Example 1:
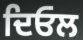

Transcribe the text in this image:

ਦਿਓਲ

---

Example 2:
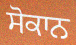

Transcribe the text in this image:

ਸੋਕਾਨ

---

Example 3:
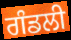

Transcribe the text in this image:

ਗੰਡਲੀ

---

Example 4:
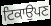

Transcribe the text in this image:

ਟਿਕਾਉਪਣ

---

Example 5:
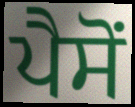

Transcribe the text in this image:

ਪੈਸੋਂ